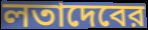
লতাদেবের